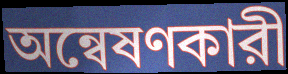
অন্বেষণকারী